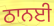
ਠਾਨਈ